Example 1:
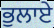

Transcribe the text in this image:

ਭੁਲਾਏ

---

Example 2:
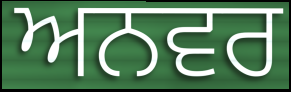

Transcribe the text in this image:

ਅਨਵਰ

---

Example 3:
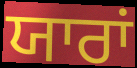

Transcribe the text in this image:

ਯਾਰਾਂ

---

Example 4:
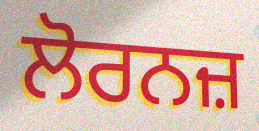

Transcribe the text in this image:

ਲੋਰਨਜ਼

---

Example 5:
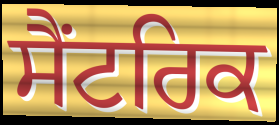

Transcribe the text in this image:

ਸੈਂਟਰਿਕ